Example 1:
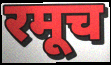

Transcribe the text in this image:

रमूच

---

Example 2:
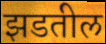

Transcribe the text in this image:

झडतील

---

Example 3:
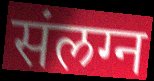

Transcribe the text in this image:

संलग्‍न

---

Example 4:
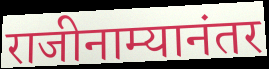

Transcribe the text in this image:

राजीनाम्यानंतर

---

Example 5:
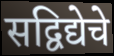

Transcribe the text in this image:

सद्विद्येचे